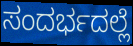
ಸಂದರ್ಭದಲ್ಲೆ